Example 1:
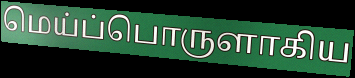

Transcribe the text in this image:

மெய்ப்பொருளாகிய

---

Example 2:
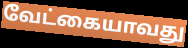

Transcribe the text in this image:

வேட்கையாவது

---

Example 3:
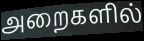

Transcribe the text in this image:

அறைகளில்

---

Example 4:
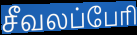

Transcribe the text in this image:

சீவலப்பேரி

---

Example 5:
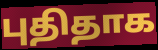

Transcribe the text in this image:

புதிதாக